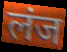
लंज